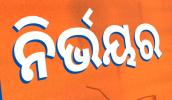
ନିର୍ଭୟର